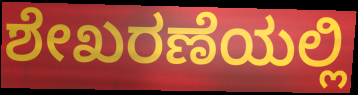
ಶೇಖರಣೆಯಲ್ಲಿ